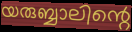
യരുബ്ബാലിന്റെ